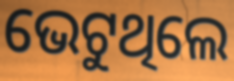
ଭେଟୁଥିଲେ